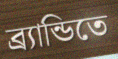
ব্র্যান্ডিতে